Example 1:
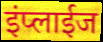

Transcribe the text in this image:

इंप्लाईज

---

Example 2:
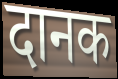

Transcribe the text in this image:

दानक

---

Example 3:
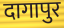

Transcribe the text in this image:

दागापुर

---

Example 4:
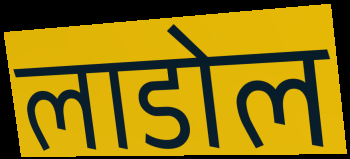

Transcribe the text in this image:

लाडोल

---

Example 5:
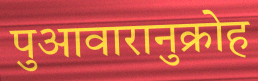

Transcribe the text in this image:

पुआवारानुक्रोह